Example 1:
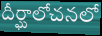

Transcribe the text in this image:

దీర్ఘాలోచనలో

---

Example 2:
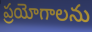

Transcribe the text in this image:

ప్రయోగాలను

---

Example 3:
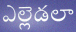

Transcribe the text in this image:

ఎల్లెడలా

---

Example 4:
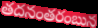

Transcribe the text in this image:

తదనంతరంబున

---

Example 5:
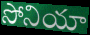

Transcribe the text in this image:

సోనియా